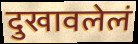
दुखावलेलं